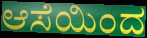
ಆಸೆಯಿಂದ